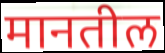
मानतील